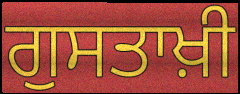
ਗੁਸਤਾਖ਼ੀ